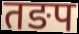
तङप